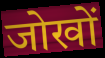
जोखों